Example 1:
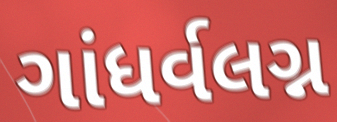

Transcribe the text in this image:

ગાંધર્વલગ્ન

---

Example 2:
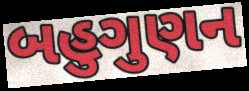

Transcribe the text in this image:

બહુગુણન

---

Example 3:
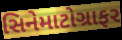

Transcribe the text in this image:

સિનેમાટોગ્રાફર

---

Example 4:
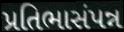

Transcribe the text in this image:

પ્રતિભાસંપન્ન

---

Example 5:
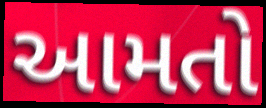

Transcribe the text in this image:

આમતો